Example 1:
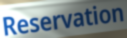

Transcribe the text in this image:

Reservation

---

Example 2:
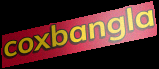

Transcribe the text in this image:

coxbangla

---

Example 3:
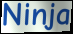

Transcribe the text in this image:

Ninja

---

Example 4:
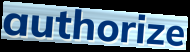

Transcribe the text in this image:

authorize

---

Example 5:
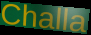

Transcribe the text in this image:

Challa